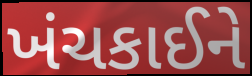
ખંચકાઈને